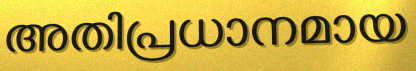
അതിപ്രധാനമായ